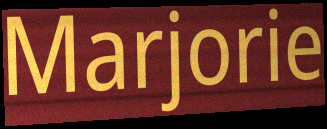
Marjorie